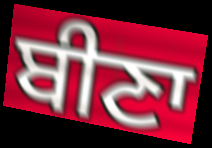
ਬੀਣਾ